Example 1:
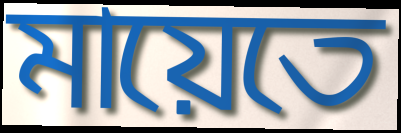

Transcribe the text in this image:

মায়েতে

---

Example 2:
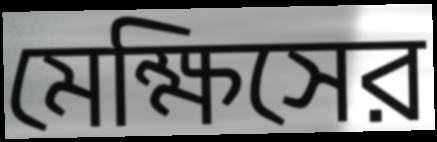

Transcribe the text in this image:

মেক্ষিসের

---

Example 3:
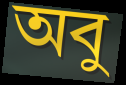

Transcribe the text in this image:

অবু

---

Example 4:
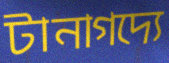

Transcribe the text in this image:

টানাগদ্যে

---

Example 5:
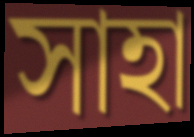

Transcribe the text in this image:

সাহা